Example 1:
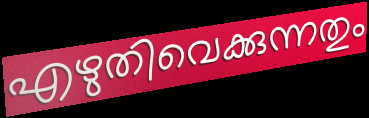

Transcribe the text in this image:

എഴുതിവെക്കുന്നതും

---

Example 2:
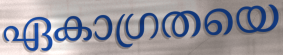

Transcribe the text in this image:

ഏകാഗ്രതയെ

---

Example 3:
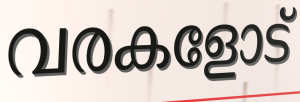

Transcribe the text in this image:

വരകളോട്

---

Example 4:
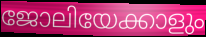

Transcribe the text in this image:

ജോലിയേക്കാളും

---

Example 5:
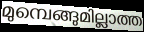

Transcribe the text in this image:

മുമ്പെങ്ങുമില്ലാത്ത